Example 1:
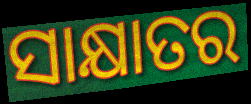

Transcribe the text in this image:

ସାକ୍ଷାତର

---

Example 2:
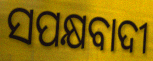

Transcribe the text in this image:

ସପକ୍ଷବାଦୀ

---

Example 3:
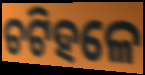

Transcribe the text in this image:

ଚଟିହଳେ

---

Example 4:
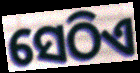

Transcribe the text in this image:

ସେଠିଏ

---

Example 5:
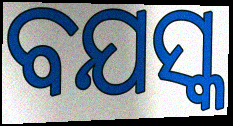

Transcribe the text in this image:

ବଯସ୍କ